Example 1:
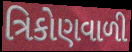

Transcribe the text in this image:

ત્રિકોણવાળી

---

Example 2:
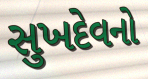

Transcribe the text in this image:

સુખદેવનો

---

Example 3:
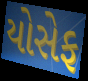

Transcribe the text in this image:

યોસેફ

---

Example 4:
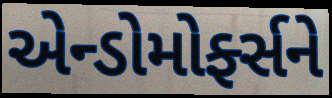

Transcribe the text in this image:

એન્ડોમોર્ફ્સને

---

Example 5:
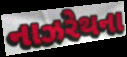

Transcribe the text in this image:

નાઝરેથના